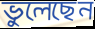
ভুলেছেন